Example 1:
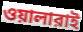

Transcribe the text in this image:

ওয়ালারাই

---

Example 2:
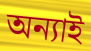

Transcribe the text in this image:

অন্যাই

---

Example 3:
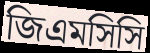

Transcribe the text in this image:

জিএমসিসি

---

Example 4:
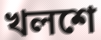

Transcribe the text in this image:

খলশে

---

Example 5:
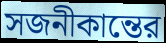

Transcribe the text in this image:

সজনীকান্তের